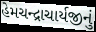
હેમચન્દ્રાચાર્યજીનું